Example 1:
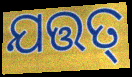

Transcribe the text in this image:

ଯତ୍ତତ୍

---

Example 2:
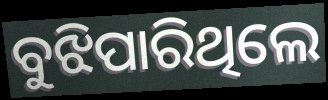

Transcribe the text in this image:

ବୁଝିପାରିଥିଲେ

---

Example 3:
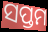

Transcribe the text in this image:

ସପ୍ତମ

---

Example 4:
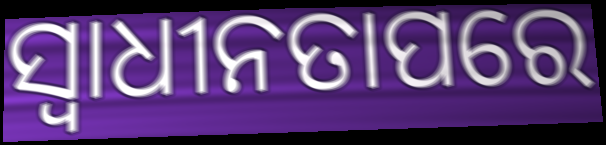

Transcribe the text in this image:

ସ୍ୱାଧୀନତାପରେ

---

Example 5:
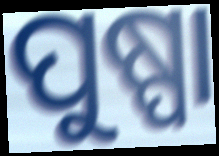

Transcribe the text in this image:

ପୁଷ୍ପା